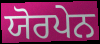
ਯੋਰਪੇਨ